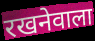
रखनेवाला